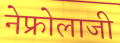
नेफ्रोलाजी